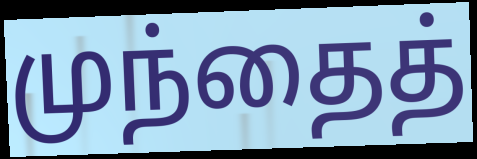
முந்தைத்